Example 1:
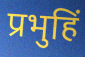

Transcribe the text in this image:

प्रभुहिं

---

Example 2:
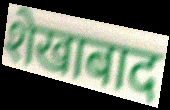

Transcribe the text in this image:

शेखाबाद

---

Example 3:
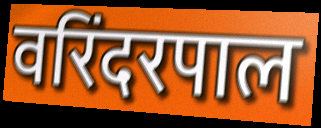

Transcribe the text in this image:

वरिंदरपाल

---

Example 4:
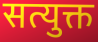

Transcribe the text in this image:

सत्युक्त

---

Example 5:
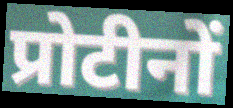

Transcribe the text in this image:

प्रोटीनों